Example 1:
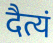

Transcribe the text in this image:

दैत्यं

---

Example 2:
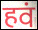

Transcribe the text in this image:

हवं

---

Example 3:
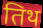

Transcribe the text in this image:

तिथ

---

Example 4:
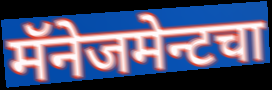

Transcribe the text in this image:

मॅनेजमेन्टचा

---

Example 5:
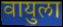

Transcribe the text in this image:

वायुला